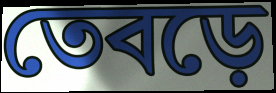
তেবড়ে